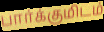
பார்க்குமிடம்